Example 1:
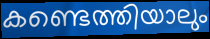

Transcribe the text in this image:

കണ്ടെത്തിയാലും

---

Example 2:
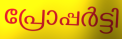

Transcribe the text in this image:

പ്രോപ്പർട്ടി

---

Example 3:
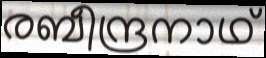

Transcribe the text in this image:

രബീന്ദ്രനാഥ്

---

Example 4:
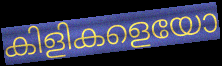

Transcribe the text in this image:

കിളികളെയോ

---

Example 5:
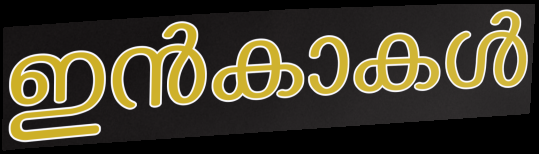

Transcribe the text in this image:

ഇൻകാകൾ